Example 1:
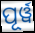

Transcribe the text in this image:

ପୂର୍ୱ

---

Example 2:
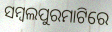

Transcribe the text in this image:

ସମ୍ବଲପୁରମାଟିରେ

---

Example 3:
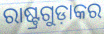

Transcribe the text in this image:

ରାଷ୍ଟ୍ରଗୁଡ଼ାକର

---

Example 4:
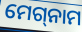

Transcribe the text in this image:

ମେଗ୍‌ନାମ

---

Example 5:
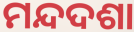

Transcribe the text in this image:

ମନ୍ଦଦଶା